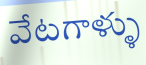
వేటగాళ్ళు